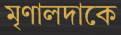
মৃণালদাকে